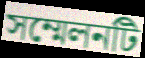
সম্মেলনটি